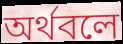
অর্থবলে